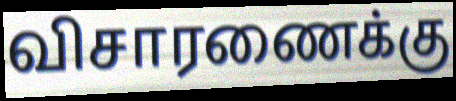
விசாரணைக்கு